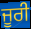
ਜੂਰੀ